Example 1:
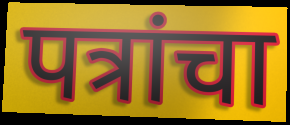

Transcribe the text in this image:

पत्रांचा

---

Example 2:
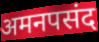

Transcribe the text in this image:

अमनपसंद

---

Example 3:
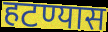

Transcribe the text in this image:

हटण्यास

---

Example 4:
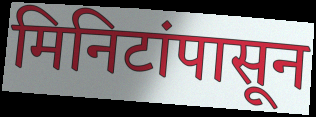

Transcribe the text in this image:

मिनिटांपासून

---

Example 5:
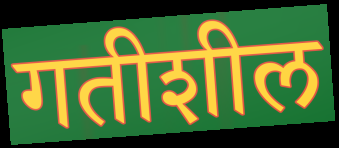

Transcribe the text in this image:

गतीशील